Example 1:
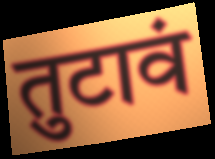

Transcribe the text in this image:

तुटावं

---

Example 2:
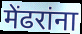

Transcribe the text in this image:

मेंढरांना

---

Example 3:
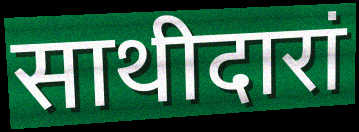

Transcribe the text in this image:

साथीदारां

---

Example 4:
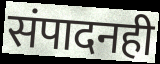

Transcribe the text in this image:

संपादनही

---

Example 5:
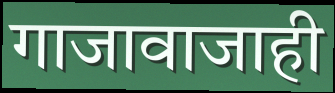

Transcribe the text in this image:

गाजावाजाही